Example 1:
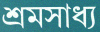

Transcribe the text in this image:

শ্ৰমসাধ্য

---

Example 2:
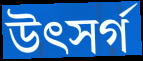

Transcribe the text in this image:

উৎসৰ্গ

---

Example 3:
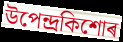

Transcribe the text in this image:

উপেন্দ্ৰকিশোৰ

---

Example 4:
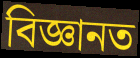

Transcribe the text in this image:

বিজ্ঞানত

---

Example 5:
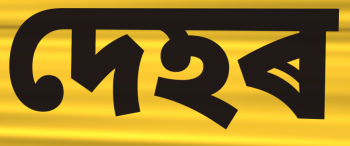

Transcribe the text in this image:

দেহৰ